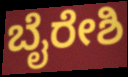
ಬೈರೇಶಿ